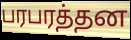
பரபரத்தன